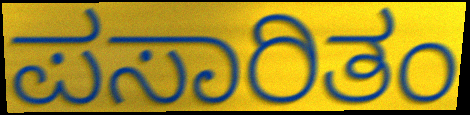
ಪಸಾರಿತಂ